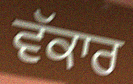
ਵੱਕਾਰ